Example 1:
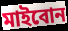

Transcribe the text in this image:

মাইবোন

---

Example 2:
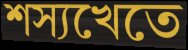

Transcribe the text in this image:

শস্যখেতে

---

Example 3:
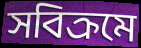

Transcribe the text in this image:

সবিক্রমে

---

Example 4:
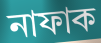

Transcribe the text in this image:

নাফাক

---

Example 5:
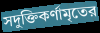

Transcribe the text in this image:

সদুক্তিকর্ণামৃতের